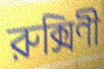
রুক্সিণী